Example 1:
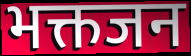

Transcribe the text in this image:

भक्तजन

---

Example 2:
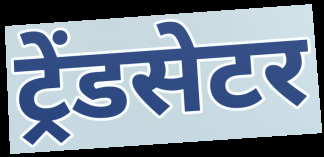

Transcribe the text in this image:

ट्रेंडसेटर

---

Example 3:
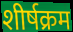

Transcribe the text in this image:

शीर्षक्रम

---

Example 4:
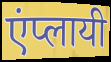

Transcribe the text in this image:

एंप्लायी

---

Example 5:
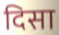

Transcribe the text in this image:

दिसा